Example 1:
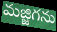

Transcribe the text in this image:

మజ్జిగను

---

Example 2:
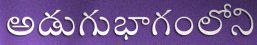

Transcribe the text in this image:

అడుగుభాగంలోని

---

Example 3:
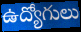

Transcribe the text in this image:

ఉద్యోగులు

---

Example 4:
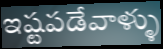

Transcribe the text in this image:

ఇష్టపడేవాళ్ళు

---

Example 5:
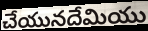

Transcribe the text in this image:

చేయునదేమియు